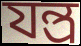
যন্ত্ৰ